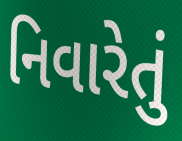
નિવારેતું